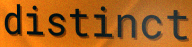
distinct